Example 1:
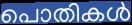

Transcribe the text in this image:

പൊതികൾ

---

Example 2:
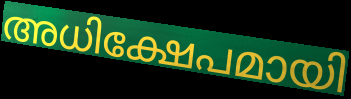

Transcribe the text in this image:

അധിക്ഷേപമായി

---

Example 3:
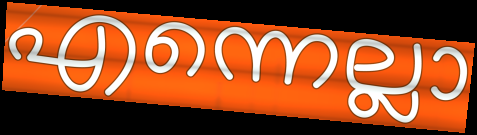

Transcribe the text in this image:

എന്നെല്ലാ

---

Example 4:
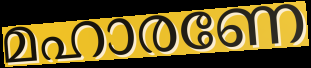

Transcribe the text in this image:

മഹാരണേ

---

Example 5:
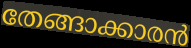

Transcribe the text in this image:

തേങ്ങാക്കാരൻ